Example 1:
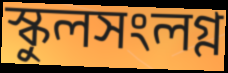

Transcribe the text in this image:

স্কুলসংলগ্ন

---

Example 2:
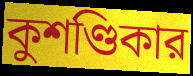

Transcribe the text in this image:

কুশণ্ডিকার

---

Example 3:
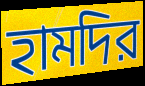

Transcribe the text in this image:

হামদির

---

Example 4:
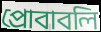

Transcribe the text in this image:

প্রোবাবলি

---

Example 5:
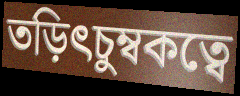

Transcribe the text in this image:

তড়িৎচুম্বকত্বে